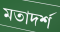
মতাদর্শ